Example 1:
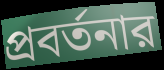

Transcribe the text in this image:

প্রবর্তনার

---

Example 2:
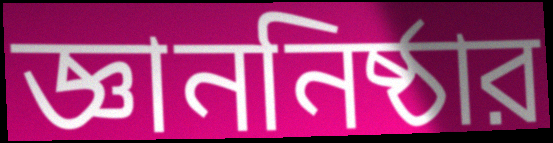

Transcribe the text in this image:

জ্ঞাননিষ্ঠার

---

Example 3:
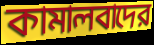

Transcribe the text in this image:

কামালবাদের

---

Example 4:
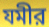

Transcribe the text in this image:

যমীর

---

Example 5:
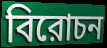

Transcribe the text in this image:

বিরোচন